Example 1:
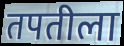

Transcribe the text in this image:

तपतीला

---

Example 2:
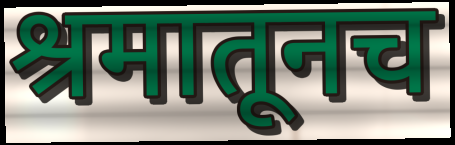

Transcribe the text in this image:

श्रमातूनच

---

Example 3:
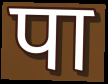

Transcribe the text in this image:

पा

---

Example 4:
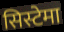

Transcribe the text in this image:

सिस्टेमा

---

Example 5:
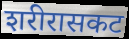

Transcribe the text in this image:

शरीरासकट